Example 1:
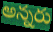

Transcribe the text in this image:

అన్నరు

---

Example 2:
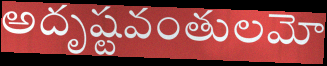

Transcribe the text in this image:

అదృష్టవంతులమో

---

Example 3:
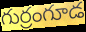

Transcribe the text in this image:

గుర్రంగూడ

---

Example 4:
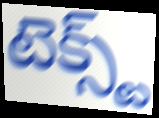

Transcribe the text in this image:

టెక్స్ట్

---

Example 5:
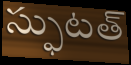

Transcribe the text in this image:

స్ఫుటత్